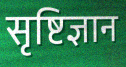
सृष्टिज्ञान